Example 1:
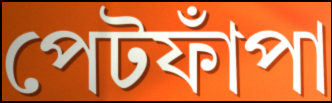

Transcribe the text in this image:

পেটফাঁপা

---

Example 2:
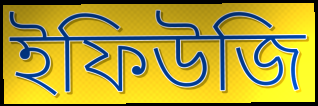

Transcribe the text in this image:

ইফিউজি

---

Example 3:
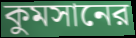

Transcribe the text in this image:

কুমসানের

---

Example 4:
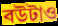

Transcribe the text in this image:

বউটাও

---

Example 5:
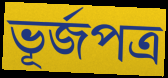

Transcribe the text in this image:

ভূর্জপত্র